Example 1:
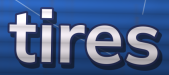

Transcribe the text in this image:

tires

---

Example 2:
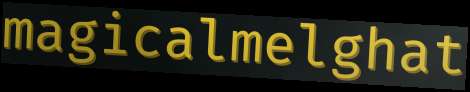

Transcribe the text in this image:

magicalmelghat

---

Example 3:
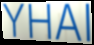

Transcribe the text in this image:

YHAI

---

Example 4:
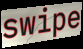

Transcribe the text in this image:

swipe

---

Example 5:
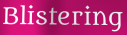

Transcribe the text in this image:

Blistering